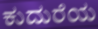
ಕುದುರೆಯ